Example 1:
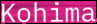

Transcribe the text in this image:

Kohima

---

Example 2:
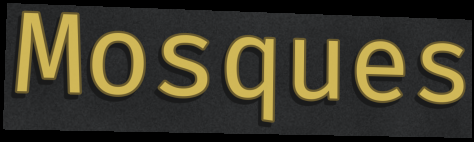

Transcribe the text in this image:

Mosques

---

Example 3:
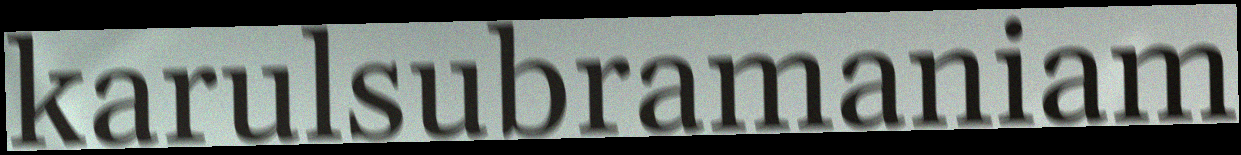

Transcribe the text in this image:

karulsubramaniam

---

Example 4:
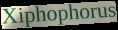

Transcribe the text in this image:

Xiphophorus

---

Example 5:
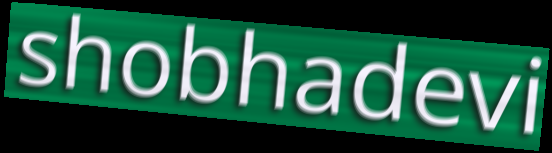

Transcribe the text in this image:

shobhadevi